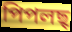
পিপলছ্